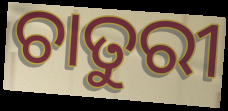
ଚାତୁରୀ